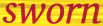
sworn